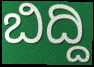
ಬಿದ್ದಿ